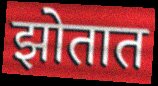
झोतात